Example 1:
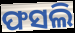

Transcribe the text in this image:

ଫସଲି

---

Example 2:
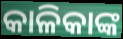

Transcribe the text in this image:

କାଳିକାଙ୍କ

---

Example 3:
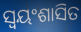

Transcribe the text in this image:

ସ୍ୱୟଂଶାସିତ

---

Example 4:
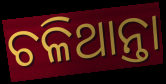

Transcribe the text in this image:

ଚଳିଥାନ୍ତା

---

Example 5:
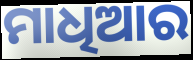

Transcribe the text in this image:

ମାଧିଆର